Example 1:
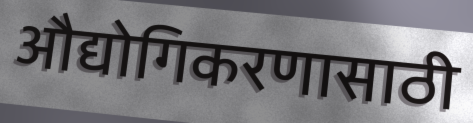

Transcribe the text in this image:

औद्योगिकरणासाठी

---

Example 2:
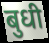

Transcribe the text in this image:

बुधी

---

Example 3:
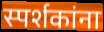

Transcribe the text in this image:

स्पर्शकांना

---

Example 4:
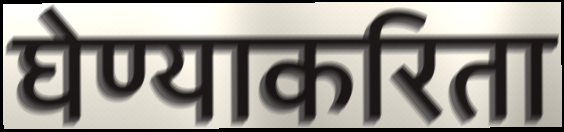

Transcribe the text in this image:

घेण्याकरिता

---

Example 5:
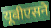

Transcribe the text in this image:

यूबीएसने